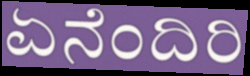
ಏನೆಂದಿರಿ